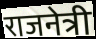
राजनेत्री